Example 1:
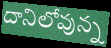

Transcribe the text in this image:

దానిలోవున్న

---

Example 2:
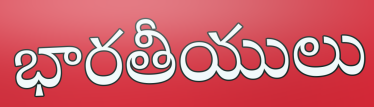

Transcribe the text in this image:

భారతీయులు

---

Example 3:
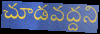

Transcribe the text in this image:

చూడవద్దని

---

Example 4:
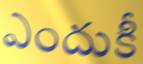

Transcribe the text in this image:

ఎందుకీ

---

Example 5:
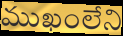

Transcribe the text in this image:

ముఖంలేని